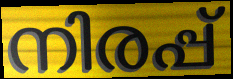
നിരപ്പ്